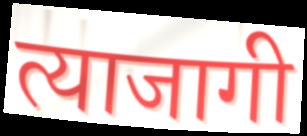
त्याजागी